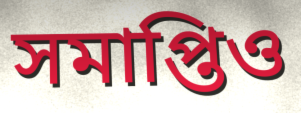
সমাপ্তিও